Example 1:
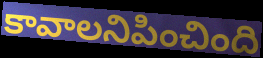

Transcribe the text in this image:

కావాలనిపించింది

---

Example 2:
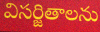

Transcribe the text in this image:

విసర్జితాలను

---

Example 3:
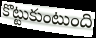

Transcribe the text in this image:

కొట్టుకుంటుంది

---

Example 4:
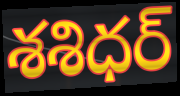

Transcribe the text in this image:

శశిధర్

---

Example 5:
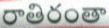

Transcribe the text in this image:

రాతిరంతా